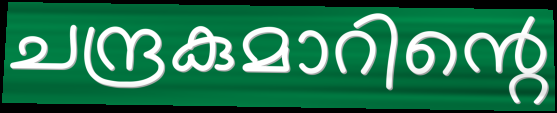
ചന്ദ്രകുമാറിന്റെ